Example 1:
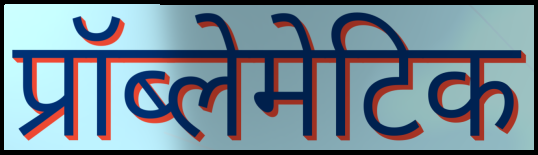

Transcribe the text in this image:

प्रॉब्लेमेटिक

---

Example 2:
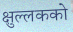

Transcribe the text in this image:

क्षुल्लकको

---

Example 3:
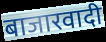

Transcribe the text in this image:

बाजारवादी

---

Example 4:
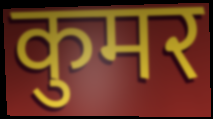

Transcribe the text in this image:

कुमर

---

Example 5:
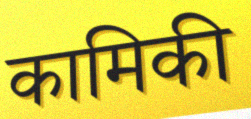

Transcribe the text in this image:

कामिकी